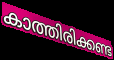
കാത്തിരിക്കണ്ട